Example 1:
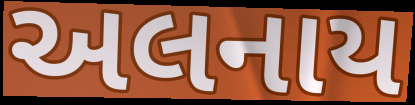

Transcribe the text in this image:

અલનાય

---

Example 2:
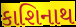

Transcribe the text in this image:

કાશિનાથ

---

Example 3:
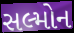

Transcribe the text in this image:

સલ્મોન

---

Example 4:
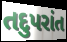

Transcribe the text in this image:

તદુપરાંત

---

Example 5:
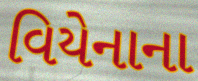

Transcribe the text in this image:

વિયેનાના